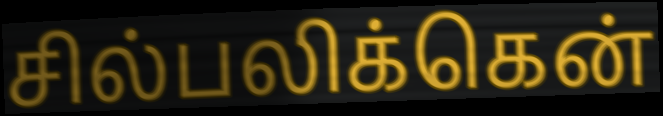
சில்பலிக்கென்